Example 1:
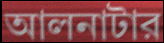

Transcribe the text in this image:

আলনাটার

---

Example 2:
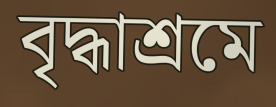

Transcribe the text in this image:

বৃদ্ধাশ্রমে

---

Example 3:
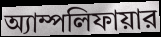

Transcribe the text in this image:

অ্যাম্পলিফায়ার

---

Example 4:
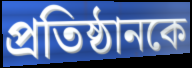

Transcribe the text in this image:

প্রতিষ্ঠানকে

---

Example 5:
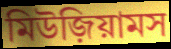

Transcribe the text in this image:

মিউজ়িয়ামস